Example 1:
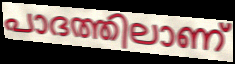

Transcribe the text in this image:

പാദത്തിലാണ്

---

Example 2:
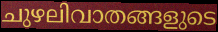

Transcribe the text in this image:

ചുഴലിവാതങ്ങളുടെ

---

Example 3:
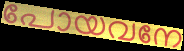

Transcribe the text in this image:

പോയവനേ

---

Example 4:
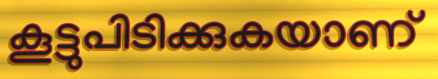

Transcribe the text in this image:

കൂട്ടുപിടിക്കുകയാണ്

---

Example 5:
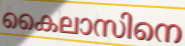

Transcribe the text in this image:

കൈലാസിനെ